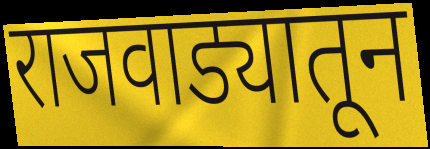
राजवाड्यातून